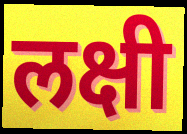
लक्षी